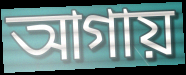
আগায়